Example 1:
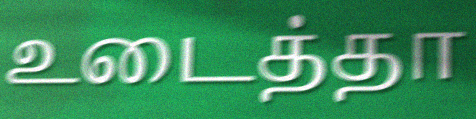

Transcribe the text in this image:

உடைத்தா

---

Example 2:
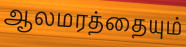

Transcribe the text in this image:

ஆலமரத்தையும்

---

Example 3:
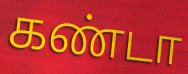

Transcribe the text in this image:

கண்டா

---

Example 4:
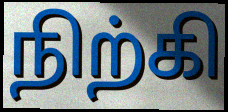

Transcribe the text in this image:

நிற்கி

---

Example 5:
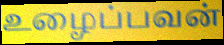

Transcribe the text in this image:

உழைப்பவன்